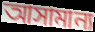
আসামান্য